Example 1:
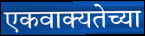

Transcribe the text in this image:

एकवाक्यतेच्या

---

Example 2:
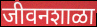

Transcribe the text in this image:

जीवनशाळा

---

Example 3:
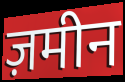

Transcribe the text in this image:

ज़मीन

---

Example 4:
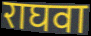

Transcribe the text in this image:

राघवा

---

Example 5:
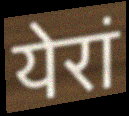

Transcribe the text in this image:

येरां